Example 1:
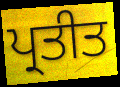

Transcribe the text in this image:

ਪ੍ਰਤੀਤ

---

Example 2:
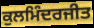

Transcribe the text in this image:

ਕੁਲਮਿੰਦਰਜੀਤ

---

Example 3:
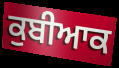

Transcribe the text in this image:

ਕੁਬੀਆਕ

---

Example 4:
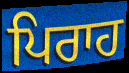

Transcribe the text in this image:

ਪਿਰਾਹ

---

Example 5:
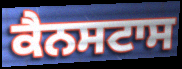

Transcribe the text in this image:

ਕੈਨਸਟਾਸ